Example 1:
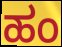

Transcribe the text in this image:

ಹಂ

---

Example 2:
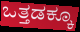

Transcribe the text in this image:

ಒತ್ತಡಕ್ಕೂ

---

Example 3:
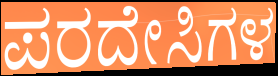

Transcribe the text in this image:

ಪರದೇಸಿಗಳ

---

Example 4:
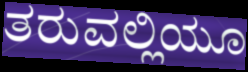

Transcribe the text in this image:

ತರುವಲ್ಲಿಯೂ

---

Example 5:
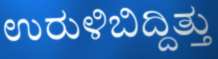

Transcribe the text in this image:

ಉರುಳಿಬಿದ್ದಿತ್ತು